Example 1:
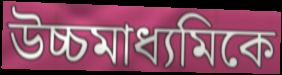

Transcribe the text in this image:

উচ্চমাধ্যমিকে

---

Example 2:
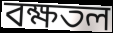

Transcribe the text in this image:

বক্ষতল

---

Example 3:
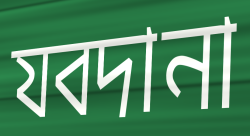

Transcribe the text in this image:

যবদানা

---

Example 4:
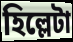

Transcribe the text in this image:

হিল্লেটা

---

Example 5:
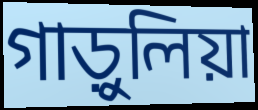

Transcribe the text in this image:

গাড়ুলিয়া